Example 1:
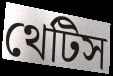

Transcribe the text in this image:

থেটিস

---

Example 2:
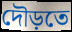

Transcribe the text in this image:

দৌড়তে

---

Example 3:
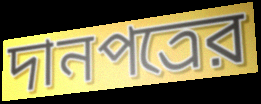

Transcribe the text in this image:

দানপত্রের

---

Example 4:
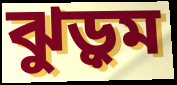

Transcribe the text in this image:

ঝুড়ুম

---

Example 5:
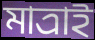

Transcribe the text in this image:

মাত্রাই